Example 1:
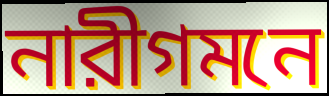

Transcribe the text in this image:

নারীগমনে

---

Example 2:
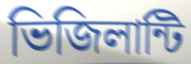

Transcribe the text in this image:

ভিজিলান্টি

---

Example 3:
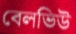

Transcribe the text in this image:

বেলভিউ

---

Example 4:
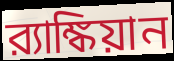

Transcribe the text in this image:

র‍্যাঙ্কিয়ান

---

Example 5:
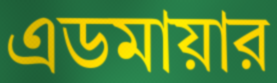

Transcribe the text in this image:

এডমায়ার